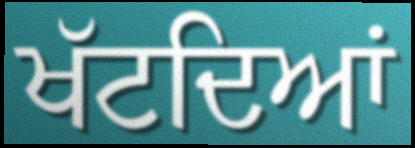
ਖੱਟਦਿਆਂ